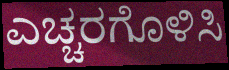
ಎಚ್ಚರಗೊಳಿಸಿ